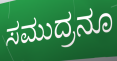
ಸಮುದ್ರನೂ